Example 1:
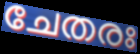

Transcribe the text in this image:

ചേതരഃ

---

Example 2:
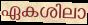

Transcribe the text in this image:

ഏകശിലാ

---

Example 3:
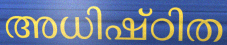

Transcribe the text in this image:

അധിഷ്ഠിത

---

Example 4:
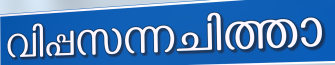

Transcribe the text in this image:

വിപ്പസന്നചിത്താ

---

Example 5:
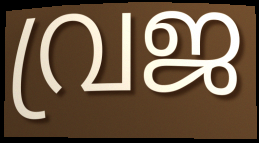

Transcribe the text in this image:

വ്രജ